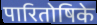
पारितोषिके